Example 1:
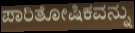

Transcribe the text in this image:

ಪಾರಿತೋಷಿಕವನ್ನು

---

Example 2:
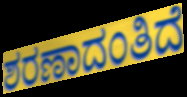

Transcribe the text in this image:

ಶರಣಾದಂತಿದೆ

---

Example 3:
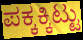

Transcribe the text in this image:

ಪಕ್ಕಕ್ಕಿಟ್ಟು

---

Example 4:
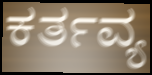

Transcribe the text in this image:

ಕರ್ತವ್ಯ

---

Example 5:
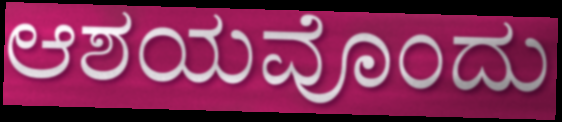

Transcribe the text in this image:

ಆಶಯವೊಂದು